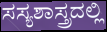
ಸಸ್ಯಶಾಸ್ತ್ರದಲ್ಲಿ